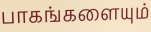
பாகங்களையும்